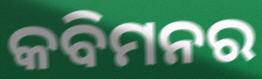
କବିମନର